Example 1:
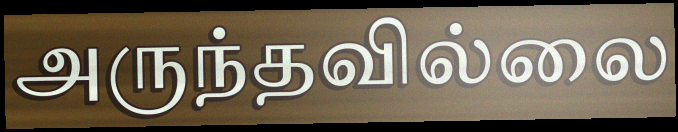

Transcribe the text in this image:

அருந்தவில்லை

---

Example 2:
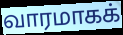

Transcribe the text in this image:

வாரமாகக்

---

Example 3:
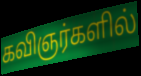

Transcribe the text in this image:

கவிஞர்களில்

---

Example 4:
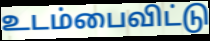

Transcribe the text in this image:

உடம்பைவிட்டு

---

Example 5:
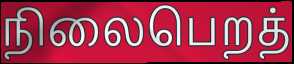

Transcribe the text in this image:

நிலைபெறத்